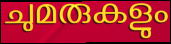
ചുമരുകളും